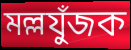
মল্লযুঁজক